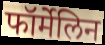
फॉर्मेलिन